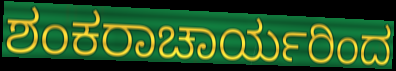
ಶಂಕರಾಚಾರ್ಯರಿಂದ